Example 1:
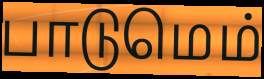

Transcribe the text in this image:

பாடுமெம்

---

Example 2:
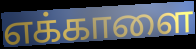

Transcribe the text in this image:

எக்காளை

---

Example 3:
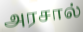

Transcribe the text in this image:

அரசால்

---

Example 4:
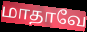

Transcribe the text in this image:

மாதாவே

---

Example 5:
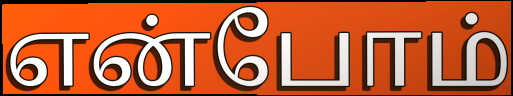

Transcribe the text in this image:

என்போம்